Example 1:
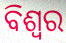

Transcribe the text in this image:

ବିଶ୍ଵର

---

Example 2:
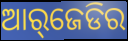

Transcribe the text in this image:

ଆର୍‌ଜେଡିର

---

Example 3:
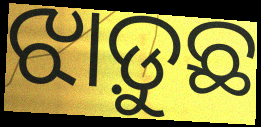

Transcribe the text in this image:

ଝାଡ଼ୁଛ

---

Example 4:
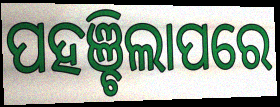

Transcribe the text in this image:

ପହଞ୍ଚିଲାପରେ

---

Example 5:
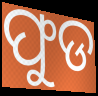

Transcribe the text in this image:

ଫୁଡ